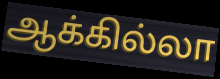
ஆக்கில்லா